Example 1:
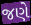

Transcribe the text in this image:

જણે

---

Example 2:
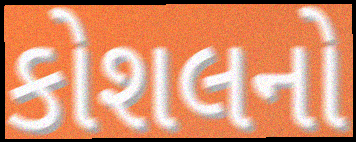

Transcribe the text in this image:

કોશલનો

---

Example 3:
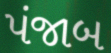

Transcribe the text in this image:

પંજાબ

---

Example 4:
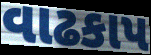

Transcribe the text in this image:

વાઢકાપ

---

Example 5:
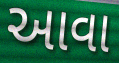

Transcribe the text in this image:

આવા